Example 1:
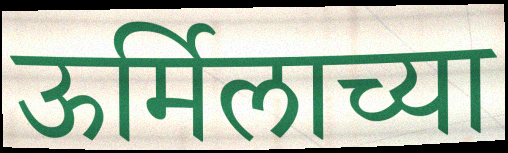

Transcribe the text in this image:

ऊर्मिलाच्या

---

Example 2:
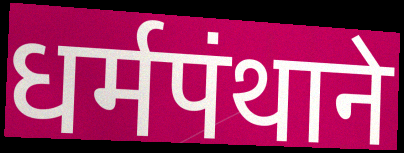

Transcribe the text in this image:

धर्मपंथाने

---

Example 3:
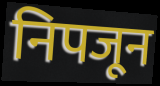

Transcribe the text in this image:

निपजून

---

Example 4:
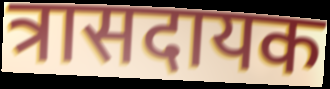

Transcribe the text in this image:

त्रासदायक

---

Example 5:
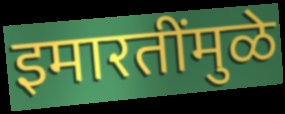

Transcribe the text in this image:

इमारतींमुळे